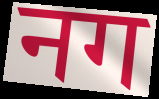
नग